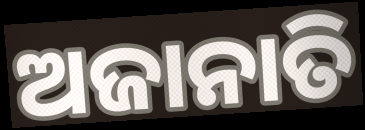
ଅଜାନାତି